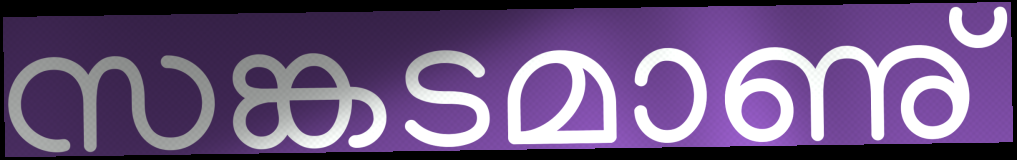
സങ്കടമാണു്